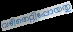
വഴിതെറ്റിപ്പോയതു